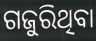
ଗଜୁରିଥିବା